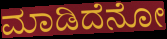
ಮಾಡಿದೆನೋ